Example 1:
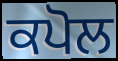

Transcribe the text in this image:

ਕਪੋਲ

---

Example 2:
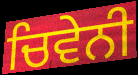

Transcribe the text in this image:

ਚਿਵੇਨੀ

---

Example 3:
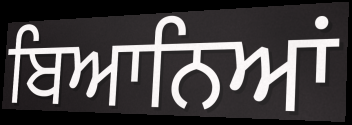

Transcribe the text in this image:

ਬਿਆਨਿਆਂ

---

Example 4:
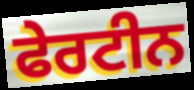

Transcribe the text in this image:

ਫੇਰਟੀਨ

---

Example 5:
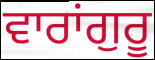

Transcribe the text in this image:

ਵਾਰਾਂਗੁਰੂ